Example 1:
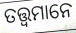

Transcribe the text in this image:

ତତ୍ତ୍ବମାନେ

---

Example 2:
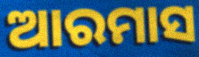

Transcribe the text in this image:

ଆରମାସ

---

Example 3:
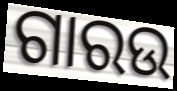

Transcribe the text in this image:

ଗାରଉ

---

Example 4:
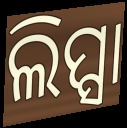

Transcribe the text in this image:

ଲିପ୍ସା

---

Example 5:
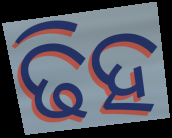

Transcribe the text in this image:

ଢିହ